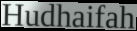
Hudhaifah